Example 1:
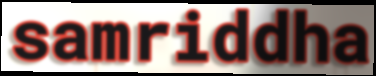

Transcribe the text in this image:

samriddha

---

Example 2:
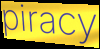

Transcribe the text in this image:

piracy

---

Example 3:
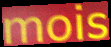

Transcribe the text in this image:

mois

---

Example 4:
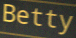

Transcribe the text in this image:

Betty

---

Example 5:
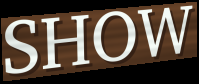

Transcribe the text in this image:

SHOW